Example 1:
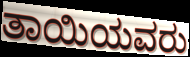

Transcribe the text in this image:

ತಾಯಿಯವರು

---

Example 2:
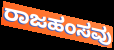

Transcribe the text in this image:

ರಾಜಹಂಸವು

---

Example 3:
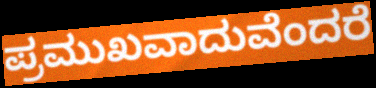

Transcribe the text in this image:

ಪ್ರಮುಖವಾದುವೆಂದರೆ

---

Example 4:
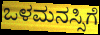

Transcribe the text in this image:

ಒಳಮನಸ್ಸಿಗೆ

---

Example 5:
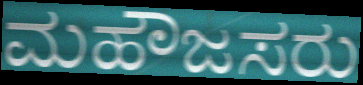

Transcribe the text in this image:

ಮಹೌಜಸರು